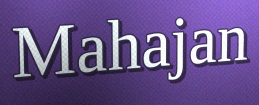
Mahajan